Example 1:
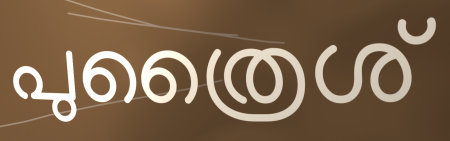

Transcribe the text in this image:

പുത്രൈശ്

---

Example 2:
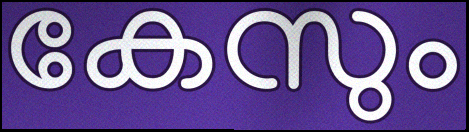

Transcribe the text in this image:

കേസും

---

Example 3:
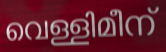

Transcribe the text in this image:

വെള്ളിമീന്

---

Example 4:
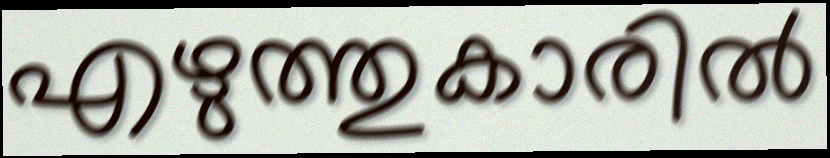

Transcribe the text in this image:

എഴുത്തുകാരിൽ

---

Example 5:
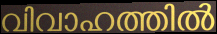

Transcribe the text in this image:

വിവാഹത്തിൽ